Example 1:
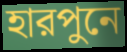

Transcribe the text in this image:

হারপুনে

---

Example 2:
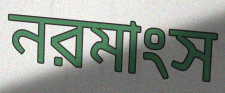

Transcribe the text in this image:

নরমাংস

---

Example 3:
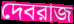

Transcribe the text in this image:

দেবরাজ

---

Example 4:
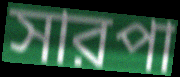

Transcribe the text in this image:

সারপা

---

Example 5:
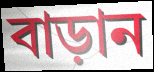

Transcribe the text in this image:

বাড়ান